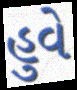
હુવે